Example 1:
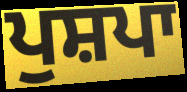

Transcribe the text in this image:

ਪੁਸ਼ਪਾ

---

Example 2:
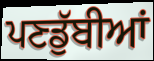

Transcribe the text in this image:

ਪਣਡੁੱਬੀਆਂ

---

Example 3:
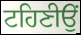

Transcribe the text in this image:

ਟਹਿਣੀਉਂ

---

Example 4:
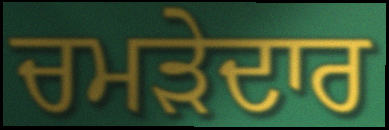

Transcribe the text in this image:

ਚਮੜੇਦਾਰ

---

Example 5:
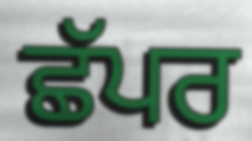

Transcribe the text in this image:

ਛੱਪਰ